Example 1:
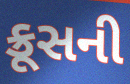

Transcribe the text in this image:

ક્રૂસની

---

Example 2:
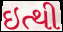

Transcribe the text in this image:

ઇત્થી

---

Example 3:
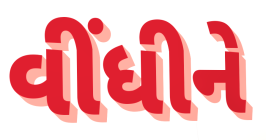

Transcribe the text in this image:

વીંધીને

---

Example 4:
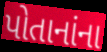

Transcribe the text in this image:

પોતાનાંના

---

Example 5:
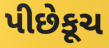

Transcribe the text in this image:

પીછેકૂચ